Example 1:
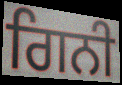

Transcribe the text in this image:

ਗਿਨੀ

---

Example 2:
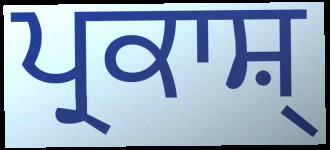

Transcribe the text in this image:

ਪ੍ਰਕਾਸ਼੍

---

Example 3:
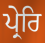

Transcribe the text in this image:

ਪ੍ਰੇਰਿ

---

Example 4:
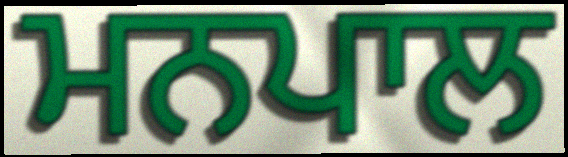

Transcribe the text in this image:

ਮਨਪਾਲ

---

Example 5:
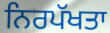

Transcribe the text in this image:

ਨਿਰਪੱਖਤਾ